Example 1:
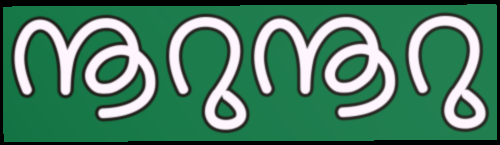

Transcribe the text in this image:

നൂറുനൂറു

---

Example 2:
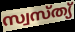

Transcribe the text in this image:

സ്വസ്ത്യ്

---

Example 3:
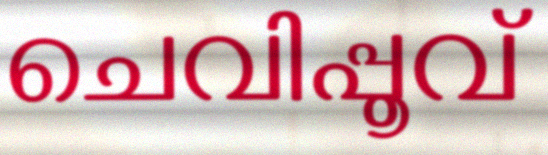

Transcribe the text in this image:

ചെവിപ്പൂവ്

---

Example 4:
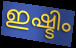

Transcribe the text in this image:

ഇഷ്ടിം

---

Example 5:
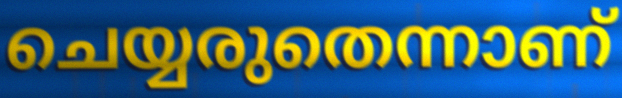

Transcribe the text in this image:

ചെയ്യരുതെന്നാണ്